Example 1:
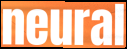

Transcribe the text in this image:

neural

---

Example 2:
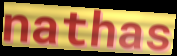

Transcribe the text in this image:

nathas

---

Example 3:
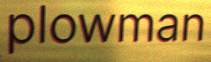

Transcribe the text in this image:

plowman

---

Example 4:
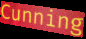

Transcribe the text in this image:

Cunning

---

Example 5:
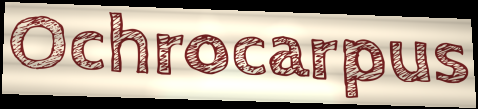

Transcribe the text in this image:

Ochrocarpus